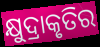
କ୍ଷୁଦ୍ରାକୃତିର